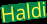
Haldi